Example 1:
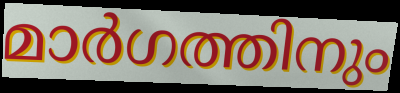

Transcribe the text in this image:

മാർഗത്തിനും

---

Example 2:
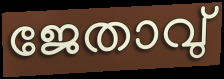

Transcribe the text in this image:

ജേതാവു്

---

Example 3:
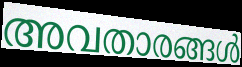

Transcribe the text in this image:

അവതാരങ്ങൾ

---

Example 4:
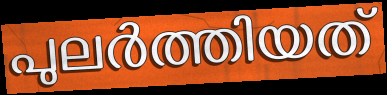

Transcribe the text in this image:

പുലർത്തിയത്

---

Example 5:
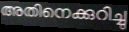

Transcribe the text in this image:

അതിനെക്കുറിച്ചു